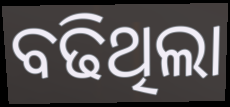
ବଢିଥିଲା